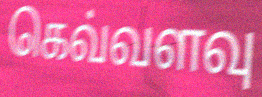
கெவ்வளவு